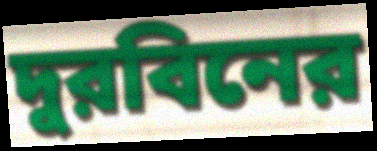
দুরবিনের